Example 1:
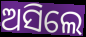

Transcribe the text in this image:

ଅସିଲେ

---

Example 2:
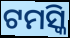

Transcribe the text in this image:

ଟମସ୍କି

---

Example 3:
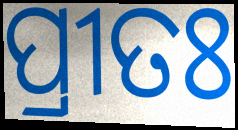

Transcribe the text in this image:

ପ୍ରୀତଃ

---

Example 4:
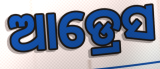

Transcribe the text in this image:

ଆଡ୍ରେସ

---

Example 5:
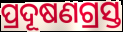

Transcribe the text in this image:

ପ୍ରଦୂଷଣଗ୍ରସ୍ତ